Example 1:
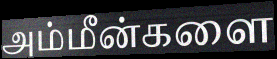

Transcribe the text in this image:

அம்மீன்களை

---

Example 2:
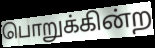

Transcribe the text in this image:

பொறுக்கின்ற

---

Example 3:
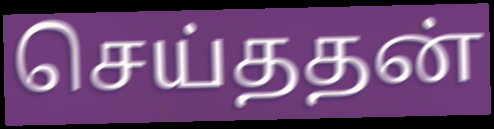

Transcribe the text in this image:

செய்ததன்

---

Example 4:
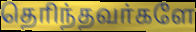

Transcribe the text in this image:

தெரிந்தவர்களே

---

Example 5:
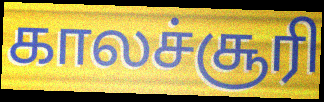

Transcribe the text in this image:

காலச்சூரி